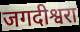
जगदीश्वरा